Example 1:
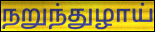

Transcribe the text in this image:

நறுந்துழாய்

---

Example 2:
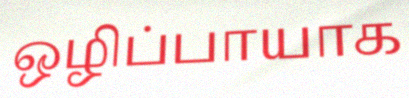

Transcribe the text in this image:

ஒழிப்பாயாக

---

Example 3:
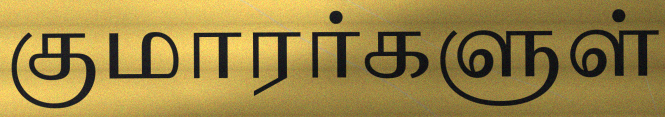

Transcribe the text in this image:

குமாரர்களுள்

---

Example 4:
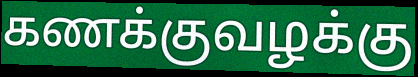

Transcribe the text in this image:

கணக்குவழக்கு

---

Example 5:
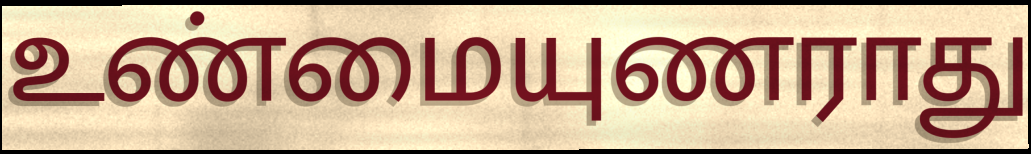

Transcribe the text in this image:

உண்மையுணராது